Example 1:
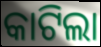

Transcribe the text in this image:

କାଟିଲା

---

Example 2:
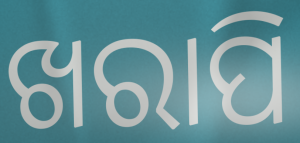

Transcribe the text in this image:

ଖରାପି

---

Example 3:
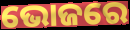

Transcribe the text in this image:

ଭୋଜରେ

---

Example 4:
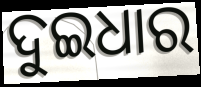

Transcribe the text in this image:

ଦୁଇଧାର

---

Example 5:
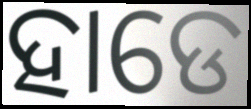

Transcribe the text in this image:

ହାଡେ